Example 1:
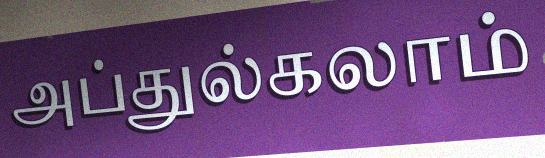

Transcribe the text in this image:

அப்துல்கலாம்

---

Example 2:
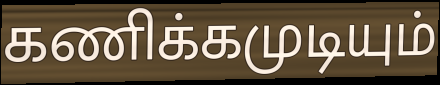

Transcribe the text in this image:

கணிக்கமுடியும்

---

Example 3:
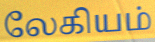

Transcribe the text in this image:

லேகியம்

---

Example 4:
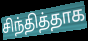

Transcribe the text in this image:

சிந்தித்தாக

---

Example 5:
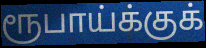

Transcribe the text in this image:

ரூபாய்க்குக்